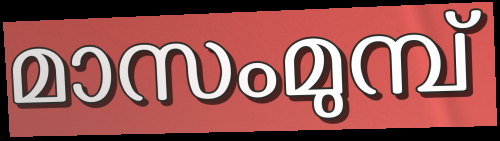
മാസംമുമ്പ്